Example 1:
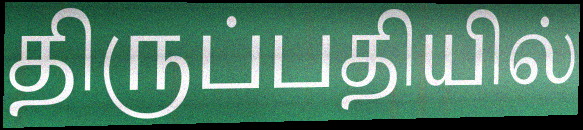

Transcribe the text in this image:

திருப்பதியில்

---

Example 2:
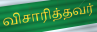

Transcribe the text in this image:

விசாரித்தவர்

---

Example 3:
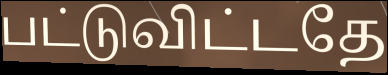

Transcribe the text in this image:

பட்டுவிட்டதே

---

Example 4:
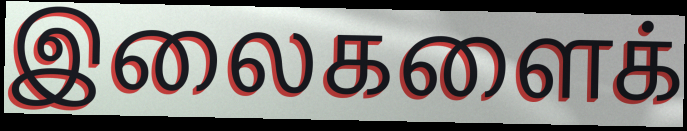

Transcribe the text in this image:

இலைகளைக்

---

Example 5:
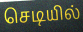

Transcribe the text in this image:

செடியில்